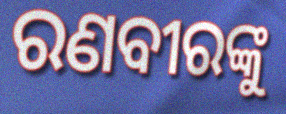
ରଣବୀରଙ୍କୁ